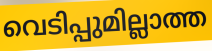
വെടിപ്പുമില്ലാത്ത